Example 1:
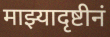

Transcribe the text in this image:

माझ्यादृष्टीनं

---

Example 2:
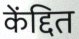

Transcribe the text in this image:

केंद्दित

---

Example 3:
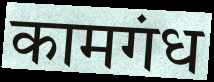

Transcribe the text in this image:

कामगंध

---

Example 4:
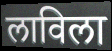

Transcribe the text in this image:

लाविला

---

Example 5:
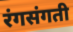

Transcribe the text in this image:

रंगसंगती